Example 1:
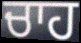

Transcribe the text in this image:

ਚਾਹ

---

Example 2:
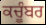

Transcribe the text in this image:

ਕਚੂੰਬਰ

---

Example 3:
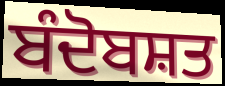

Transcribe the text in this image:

ਬੰਦੋਬਸ਼ਤ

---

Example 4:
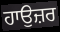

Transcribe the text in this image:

ਹਾਉਜ਼ਰ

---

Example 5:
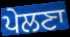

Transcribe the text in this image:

ਪੇਲਣਾ